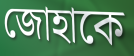
জোহাকে